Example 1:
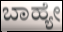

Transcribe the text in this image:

ಬಾಹ್ಯೇ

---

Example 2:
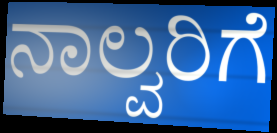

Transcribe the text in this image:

ನಾಲ್ವರಿಗೆ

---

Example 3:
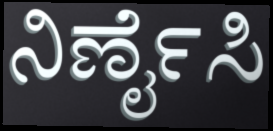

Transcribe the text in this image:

ನಿರ್ಣೈಸಿ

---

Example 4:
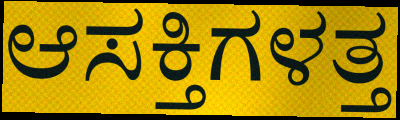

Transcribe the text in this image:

ಆಸಕ್ತಿಗಳತ್ತ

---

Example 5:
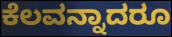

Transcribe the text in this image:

ಕೆಲವನ್ನಾದರೂ